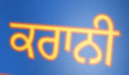
ਕਰਾਨੀ